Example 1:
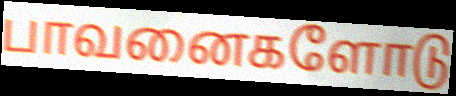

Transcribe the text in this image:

பாவனைகளோடு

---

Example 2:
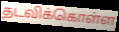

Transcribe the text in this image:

தடவிக்கொள்ள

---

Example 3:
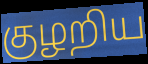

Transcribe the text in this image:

குழறிய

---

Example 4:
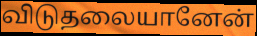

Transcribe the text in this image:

விடுதலையானேன்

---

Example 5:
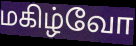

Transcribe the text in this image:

மகிழ்வோ